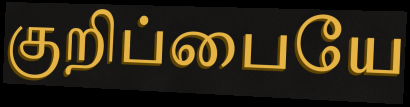
குறிப்பையே